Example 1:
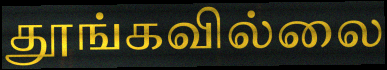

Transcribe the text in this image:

தூங்கவில்லை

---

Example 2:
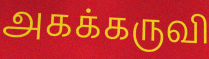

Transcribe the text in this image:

அகக்கருவி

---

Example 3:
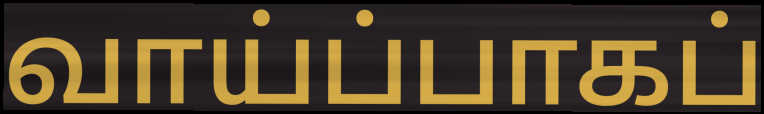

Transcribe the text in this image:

வாய்ப்பாகப்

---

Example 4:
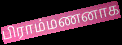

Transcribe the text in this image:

பிராம்மணனாக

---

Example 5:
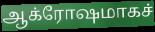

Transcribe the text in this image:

ஆக்ரோஷமாகச்